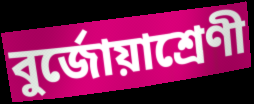
বুর্জোয়াশ্রেণী